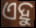
ଏହୁ